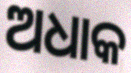
ଅଧାକ